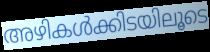
അഴികൾക്കിടയിലൂടെ